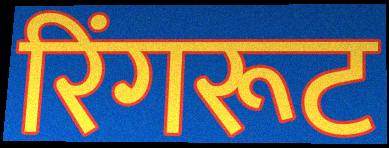
रिंगरूट